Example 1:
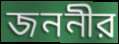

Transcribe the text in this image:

জননীর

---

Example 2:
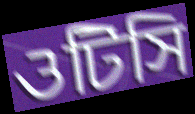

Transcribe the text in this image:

ওটিসি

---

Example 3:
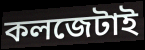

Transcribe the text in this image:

কলজেটাই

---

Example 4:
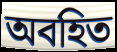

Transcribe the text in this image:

অবহিত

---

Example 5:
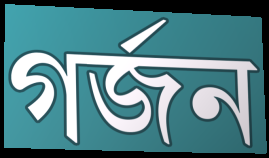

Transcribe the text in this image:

গর্জন